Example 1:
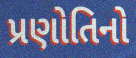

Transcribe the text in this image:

પ્રણોતિનો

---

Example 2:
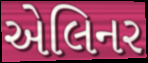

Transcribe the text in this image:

એલિનર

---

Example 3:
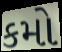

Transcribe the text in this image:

કમો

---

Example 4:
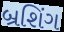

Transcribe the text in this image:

બ્રશિંગ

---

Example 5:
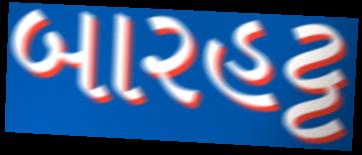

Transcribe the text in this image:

બારહટ્ટ